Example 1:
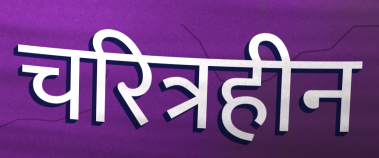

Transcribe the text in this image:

चरित्रहीन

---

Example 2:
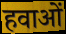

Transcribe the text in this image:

हवाओं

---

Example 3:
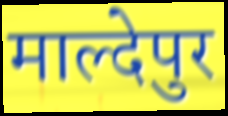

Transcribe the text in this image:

माल्देपुर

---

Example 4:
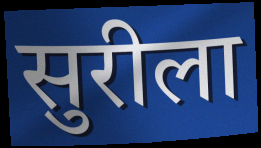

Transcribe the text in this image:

सुरीला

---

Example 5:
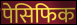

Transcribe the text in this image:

पेसिफिक